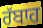
ਰੱਬਾਹ